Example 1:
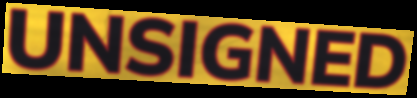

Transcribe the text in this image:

UNSIGNED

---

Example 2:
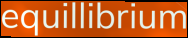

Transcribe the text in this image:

equillibrium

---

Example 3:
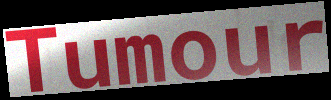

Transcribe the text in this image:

Tumour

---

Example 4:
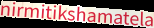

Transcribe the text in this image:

nirmitikshamatela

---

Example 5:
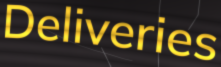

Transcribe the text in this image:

Deliveries